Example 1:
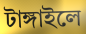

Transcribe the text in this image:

টাঙ্গাইলে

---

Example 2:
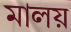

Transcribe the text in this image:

মালয়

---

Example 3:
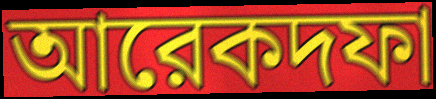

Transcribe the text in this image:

আরেকদফা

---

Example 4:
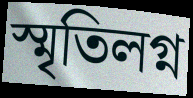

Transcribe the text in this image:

স্মৃতিলগ্ন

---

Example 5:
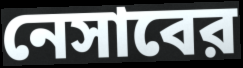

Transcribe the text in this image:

নেসাবের